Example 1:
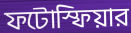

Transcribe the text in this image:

ফটোস্ফিয়ার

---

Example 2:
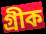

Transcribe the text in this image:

গ্রীক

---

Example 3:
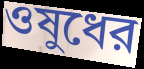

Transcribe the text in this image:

ওষুধের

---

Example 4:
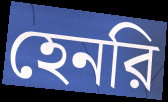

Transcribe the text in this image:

হেনরি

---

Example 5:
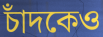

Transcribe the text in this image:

চাঁদকেও